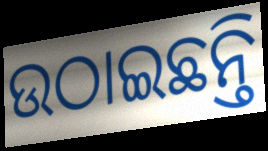
ଉଠାଇଛନ୍ତି